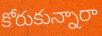
కోరుకున్నారా